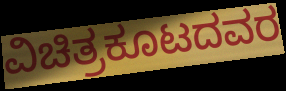
ವಿಚಿತ್ರಕೂಟದವರ